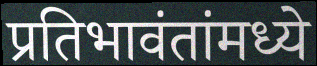
प्रतिभावंतांमध्ये